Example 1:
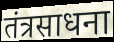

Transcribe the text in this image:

तंत्रसाधना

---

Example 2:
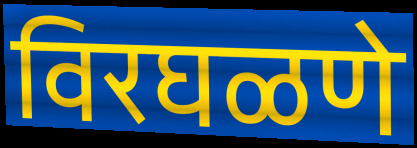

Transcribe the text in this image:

विरघळणे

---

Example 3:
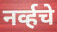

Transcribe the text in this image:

नर्व्हचे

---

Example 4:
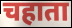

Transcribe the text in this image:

चहाता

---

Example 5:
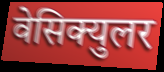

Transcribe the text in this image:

वेसिक्युलर